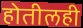
होतीलही